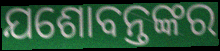
ଯଶୋବନ୍ତଙ୍କର